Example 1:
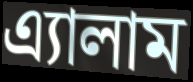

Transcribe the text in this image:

এ্যালাম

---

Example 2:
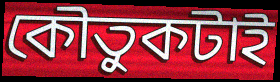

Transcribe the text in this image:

কৌতুকটাই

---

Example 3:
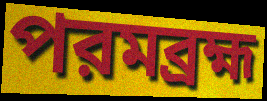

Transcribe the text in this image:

পরমব্রহ্ম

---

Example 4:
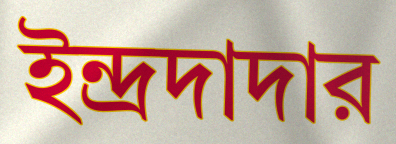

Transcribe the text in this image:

ইন্দ্রদাদার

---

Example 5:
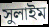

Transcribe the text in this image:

সুলাইম